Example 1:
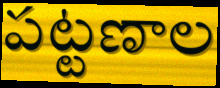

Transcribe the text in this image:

పట్టణాల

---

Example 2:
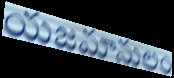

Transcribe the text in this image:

యజమానులం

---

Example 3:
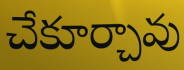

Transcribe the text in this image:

చేకూర్చావు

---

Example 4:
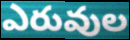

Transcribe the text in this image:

ఎరువుల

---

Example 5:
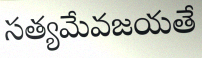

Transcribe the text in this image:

సత్యమేవజయతే